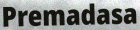
Premadasa